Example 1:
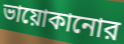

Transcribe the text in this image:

ভায়োকানোর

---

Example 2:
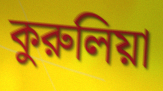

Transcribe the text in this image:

কুরুলিয়া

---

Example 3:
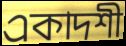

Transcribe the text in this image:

একাদশী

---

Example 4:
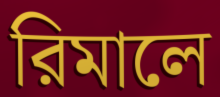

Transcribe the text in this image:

রিমালে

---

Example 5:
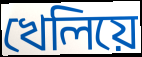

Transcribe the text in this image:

খেলিয়ে